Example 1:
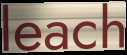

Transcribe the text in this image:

leach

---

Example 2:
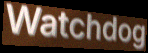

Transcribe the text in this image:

Watchdog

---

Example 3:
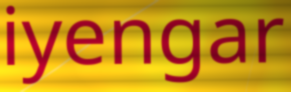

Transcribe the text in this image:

iyengar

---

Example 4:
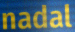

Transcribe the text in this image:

nadal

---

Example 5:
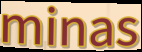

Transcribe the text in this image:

minas